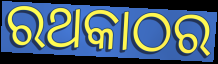
ରଥକାଠର